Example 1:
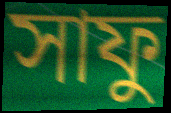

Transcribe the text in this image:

সাফু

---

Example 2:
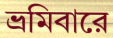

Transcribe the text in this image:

ভ্রমিবারে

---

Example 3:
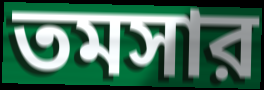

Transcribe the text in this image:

তমসার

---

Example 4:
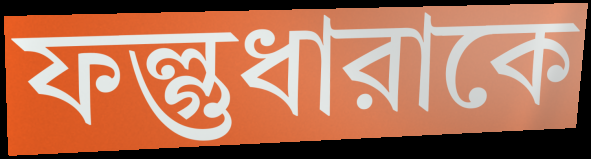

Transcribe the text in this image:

ফল্গুধারাকে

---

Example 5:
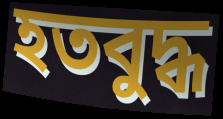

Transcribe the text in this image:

হতবুদ্ধ